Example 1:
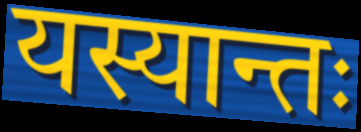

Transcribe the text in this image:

यस्यान्तः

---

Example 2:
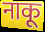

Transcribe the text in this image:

नाकू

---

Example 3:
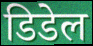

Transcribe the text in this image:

डिडेल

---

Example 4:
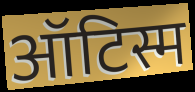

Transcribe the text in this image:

ऑटिस्म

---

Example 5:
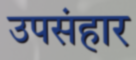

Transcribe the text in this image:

उपसंहार